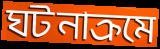
ঘটনাক্রমে